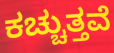
ಕಚ್ಚುತ್ತವೆ